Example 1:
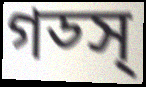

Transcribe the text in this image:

গড্স্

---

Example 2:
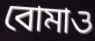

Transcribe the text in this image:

বোমাও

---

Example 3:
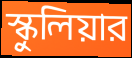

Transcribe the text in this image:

স্কুলিয়ার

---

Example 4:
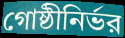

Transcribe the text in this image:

গোষ্ঠীনির্ভর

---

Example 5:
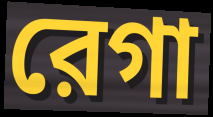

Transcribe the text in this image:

রেগা